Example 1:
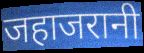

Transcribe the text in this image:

जहाजरानी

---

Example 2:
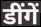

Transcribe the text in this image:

डींगें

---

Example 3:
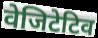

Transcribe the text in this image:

वेजिटेटिव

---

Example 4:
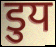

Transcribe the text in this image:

डुय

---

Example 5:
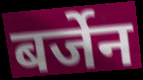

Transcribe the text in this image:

बर्जेन